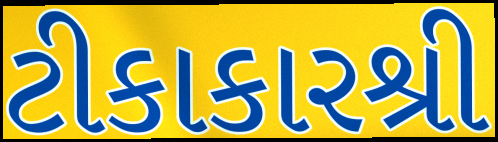
ટીકાકારશ્રી